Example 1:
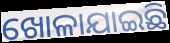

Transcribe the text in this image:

ଖୋଳାଯାଇଛି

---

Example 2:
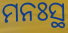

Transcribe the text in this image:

ମନଃସ୍ଥ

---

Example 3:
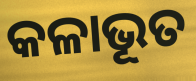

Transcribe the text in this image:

କଳାଭୂତ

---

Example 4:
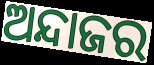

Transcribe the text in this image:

ଅନ୍ଦାଜର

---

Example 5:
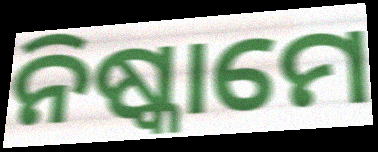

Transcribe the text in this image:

ନିଷ୍କାମେ